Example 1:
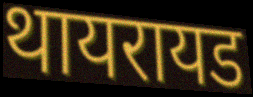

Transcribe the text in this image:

थायरायड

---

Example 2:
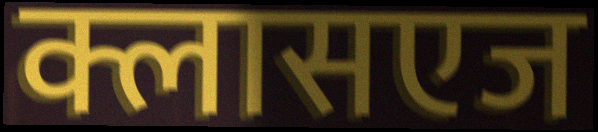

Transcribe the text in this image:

क्लासएज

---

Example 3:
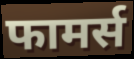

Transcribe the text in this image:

फामर्स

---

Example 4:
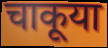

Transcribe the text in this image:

चाकूया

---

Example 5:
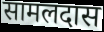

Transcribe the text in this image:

सामलदास